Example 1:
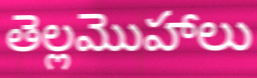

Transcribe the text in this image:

తెల్లమొహాలు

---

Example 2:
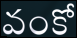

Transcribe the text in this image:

వంకో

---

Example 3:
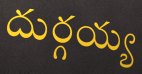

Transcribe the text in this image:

దుర్గయ్య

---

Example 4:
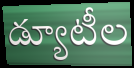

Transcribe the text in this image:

డ్యూటీల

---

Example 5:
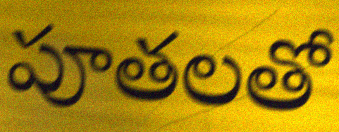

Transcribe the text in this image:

పూతలతో